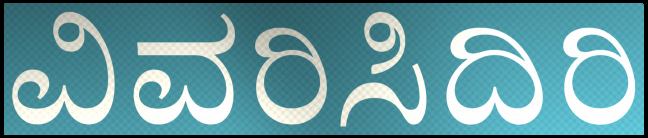
ವಿವರಿಸಿದಿರಿ